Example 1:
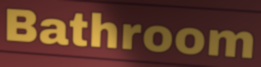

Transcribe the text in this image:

Bathroom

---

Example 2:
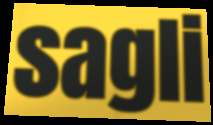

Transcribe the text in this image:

sagli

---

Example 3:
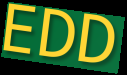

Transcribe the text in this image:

EDD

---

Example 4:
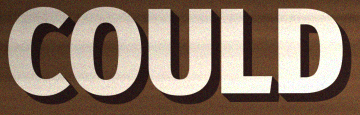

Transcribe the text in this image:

COULD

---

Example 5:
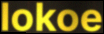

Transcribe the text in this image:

lokoe